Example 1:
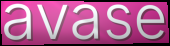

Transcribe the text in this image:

avase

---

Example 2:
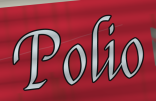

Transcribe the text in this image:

Polio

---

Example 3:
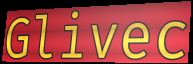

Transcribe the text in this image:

Glivec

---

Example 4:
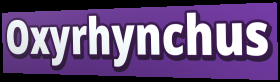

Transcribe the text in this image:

Oxyrhynchus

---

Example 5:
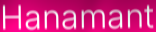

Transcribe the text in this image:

Hanamant